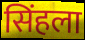
सिंहला